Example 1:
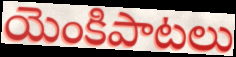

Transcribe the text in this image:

యెంకిపాటలు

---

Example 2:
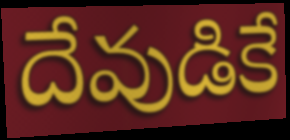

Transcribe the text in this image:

దేవుడికే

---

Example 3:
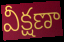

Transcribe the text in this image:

వీక్షణా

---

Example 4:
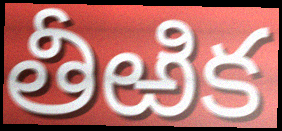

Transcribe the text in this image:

తీఱిక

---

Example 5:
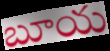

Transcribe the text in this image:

బూయ